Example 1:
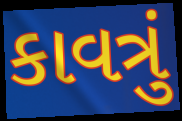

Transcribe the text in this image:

કાવત્રું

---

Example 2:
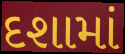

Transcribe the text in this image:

દશામાં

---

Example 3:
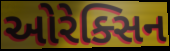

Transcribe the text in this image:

ઓરેક્સિન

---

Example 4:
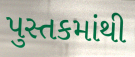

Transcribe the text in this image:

પુસ્તકમાંથી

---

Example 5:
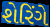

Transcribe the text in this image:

શેરિંગે